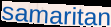
samaritan